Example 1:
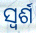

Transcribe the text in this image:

ସ୍ୱର୍ଶ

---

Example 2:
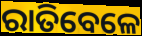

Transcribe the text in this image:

ରାତିବେଳେ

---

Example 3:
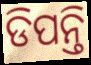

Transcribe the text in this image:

ଡିପନ୍ତି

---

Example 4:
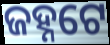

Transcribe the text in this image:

ଜହ୍ନଟେ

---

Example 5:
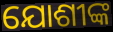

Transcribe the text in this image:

ଯୋଶୀଙ୍କ